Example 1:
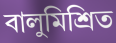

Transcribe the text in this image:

বালুমিশ্রিত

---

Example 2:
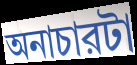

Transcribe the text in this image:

অনাচারটা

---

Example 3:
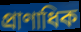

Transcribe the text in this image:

প্রাণাধিক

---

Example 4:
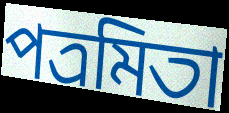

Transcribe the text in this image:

পত্রমিতা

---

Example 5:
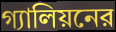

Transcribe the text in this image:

গ্যালিয়নের